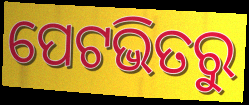
ପେଟଭିତରୁ